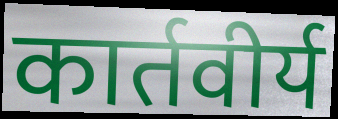
कार्तवीर्य